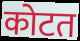
कोटत